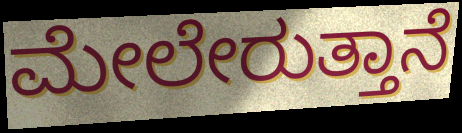
ಮೇಲೇರುತ್ತಾನೆ